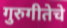
गुरुगीतेचे